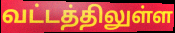
வட்டத்திலுள்ள